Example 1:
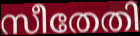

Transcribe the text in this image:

സീതേതി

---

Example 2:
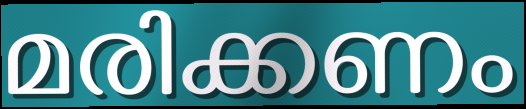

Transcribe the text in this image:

മരിക്കണം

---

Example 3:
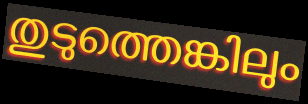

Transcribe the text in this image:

തുടുത്തെങ്കിലും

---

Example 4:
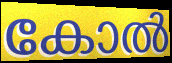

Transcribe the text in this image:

കോൽ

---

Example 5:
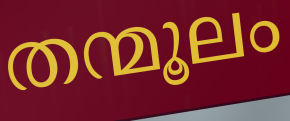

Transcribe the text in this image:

തന്മൂലം